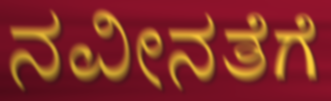
ನವೀನತೆಗೆ